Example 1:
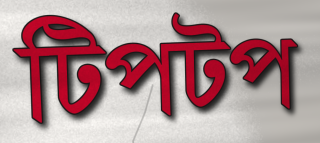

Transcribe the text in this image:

টিপটপ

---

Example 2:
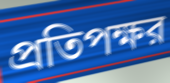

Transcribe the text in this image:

প্রতিপক্ষর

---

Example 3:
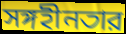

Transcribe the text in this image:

সঙ্গহীনতার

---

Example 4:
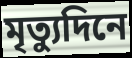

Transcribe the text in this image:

মৃত্যুদিনে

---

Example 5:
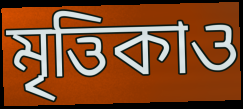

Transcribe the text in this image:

মৃত্তিকাও